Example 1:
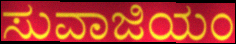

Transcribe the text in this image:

ಸುವಾಜಿಯಂ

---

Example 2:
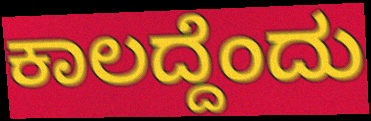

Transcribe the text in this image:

ಕಾಲದ್ದೆಂದು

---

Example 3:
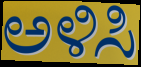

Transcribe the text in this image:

ಅಳಿಸಿ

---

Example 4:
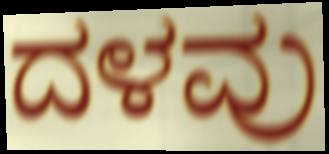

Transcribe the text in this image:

ದಳವು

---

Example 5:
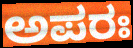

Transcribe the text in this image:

ಅಪರಃ